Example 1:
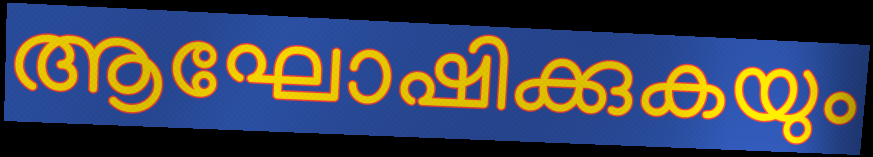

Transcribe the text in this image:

ആഘോഷിക്കുകയും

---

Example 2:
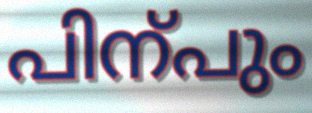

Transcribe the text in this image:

പിന്പും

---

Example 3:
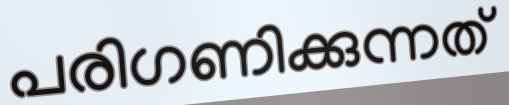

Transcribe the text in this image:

പരിഗണിക്കുന്നത്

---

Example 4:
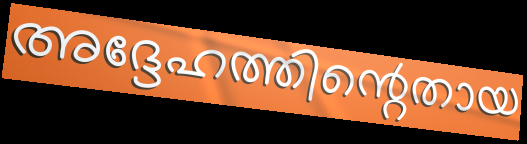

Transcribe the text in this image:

അദ്ദേഹത്തിന്റെതായ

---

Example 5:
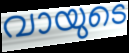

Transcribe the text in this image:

വായുടെ